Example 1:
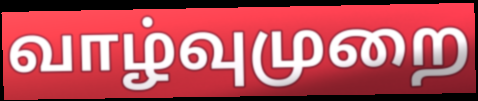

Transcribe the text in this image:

வாழ்வுமுறை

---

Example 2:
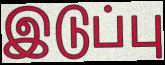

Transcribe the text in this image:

இடுப்பு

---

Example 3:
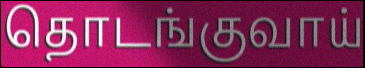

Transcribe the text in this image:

தொடங்குவாய்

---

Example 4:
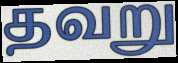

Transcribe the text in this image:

தவறு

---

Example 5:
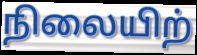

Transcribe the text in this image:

நிலையிற்